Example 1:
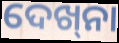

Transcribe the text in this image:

ଦେଖ୍‌ନା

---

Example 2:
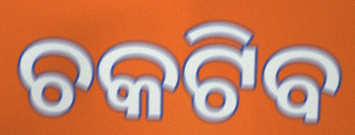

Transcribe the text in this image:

ଚକଟିବ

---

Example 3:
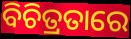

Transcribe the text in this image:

ବିଚିତ୍ରତାରେ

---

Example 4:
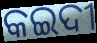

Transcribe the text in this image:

କଇଦୀ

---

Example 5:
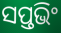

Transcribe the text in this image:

ସପ୍ତଭିଂ